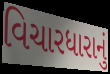
વિચારધારાનું